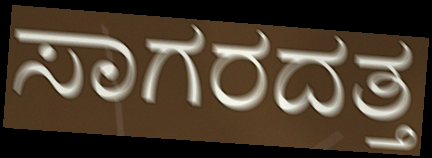
ಸಾಗರದತ್ತ